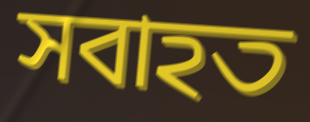
সবাহত